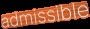
admissible